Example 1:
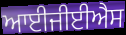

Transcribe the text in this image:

ਆਈਜੀਈਐਸ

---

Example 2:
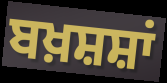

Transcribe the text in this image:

ਬਖ਼ਸ਼ਸ਼ਾਂ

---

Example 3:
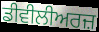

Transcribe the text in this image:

ਡੀਵੀਲੀਅਰਜ਼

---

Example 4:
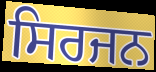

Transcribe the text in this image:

ਸਿਰਜਨ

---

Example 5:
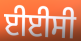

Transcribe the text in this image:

ਈਈਸੀ